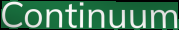
Continuum